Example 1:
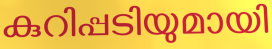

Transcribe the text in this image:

കുറിപ്പടിയുമായി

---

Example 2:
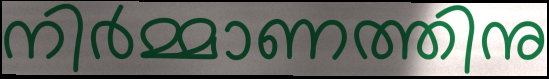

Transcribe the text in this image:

നിർമ്മാണത്തിനു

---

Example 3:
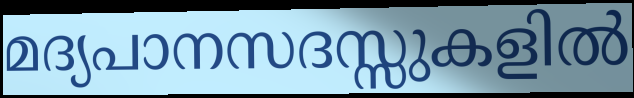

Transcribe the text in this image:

മദ്യപാനസദസ്സുകളിൽ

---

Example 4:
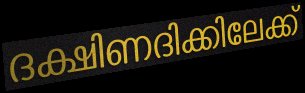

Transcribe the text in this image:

ദക്ഷിണദിക്കിലേക്ക്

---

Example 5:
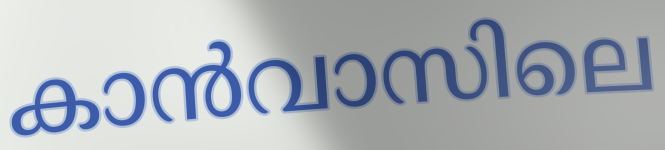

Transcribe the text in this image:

കാൻവാസിലെ